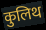
कुलिथ